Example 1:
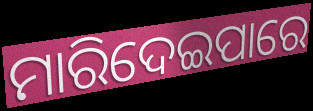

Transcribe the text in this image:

ମାରିଦେଇପାରେ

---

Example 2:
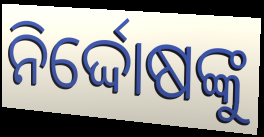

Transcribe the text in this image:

ନିର୍ଦ୍ଦୋଷଙ୍କୁ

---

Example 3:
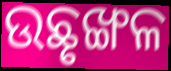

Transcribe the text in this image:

ଉଛୃଙ୍ଖଳ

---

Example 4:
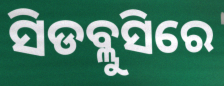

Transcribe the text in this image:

ସିଡବ୍ଲୁସିରେ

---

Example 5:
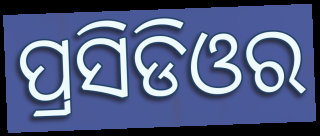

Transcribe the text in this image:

ପ୍ରସିଡିଓର